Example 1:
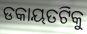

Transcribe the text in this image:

ଡକାୟତଟିକୁ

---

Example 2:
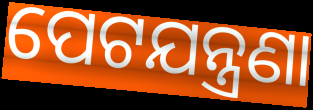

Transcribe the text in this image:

ପେଟଯନ୍ତ୍ରଣା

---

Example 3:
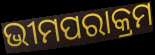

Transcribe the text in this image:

ଭୀମପରାକ୍ରମ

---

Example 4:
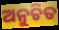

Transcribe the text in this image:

ଅନୁଚିତ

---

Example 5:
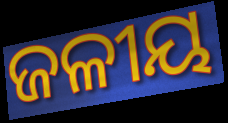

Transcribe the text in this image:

ଜଳୀୟ